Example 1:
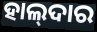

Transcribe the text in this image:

ହାଲ୍‌ଦାର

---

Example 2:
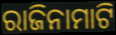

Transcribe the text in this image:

ରାଜିନାମାଟି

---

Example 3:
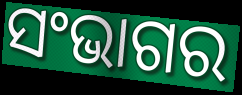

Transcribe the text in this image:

ସଂଭାଗର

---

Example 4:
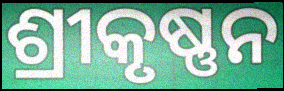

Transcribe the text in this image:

ଶ୍ରୀକୃଷ୍ଣନ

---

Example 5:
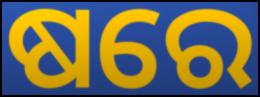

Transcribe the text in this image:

ଷରେ